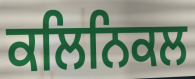
ਕਲਿਨਿਕਲ